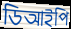
ডিআইপি